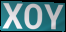
XOY